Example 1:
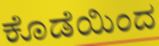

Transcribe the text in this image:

ಕೊಡೆಯಿಂದ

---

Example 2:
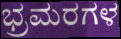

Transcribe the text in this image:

ಭ್ರಮರಗಳ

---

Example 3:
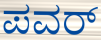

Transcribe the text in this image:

ಪವರ್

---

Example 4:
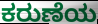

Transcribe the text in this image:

ಕರುಣೆಯ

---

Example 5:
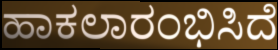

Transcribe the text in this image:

ಹಾಕಲಾರಂಭಿಸಿದೆ